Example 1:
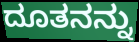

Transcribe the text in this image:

ದೂತನನ್ನು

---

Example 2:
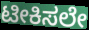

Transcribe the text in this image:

ಟೀಕಿಸಲೇ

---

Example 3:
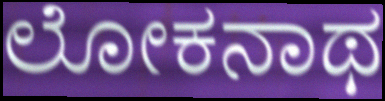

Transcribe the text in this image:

ಲೋಕನಾಥ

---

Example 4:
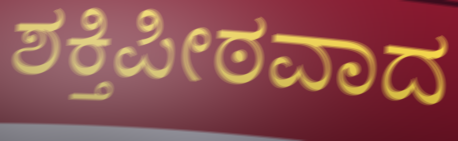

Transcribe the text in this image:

ಶಕ್ತಿಪೀಠವಾದ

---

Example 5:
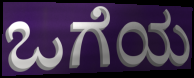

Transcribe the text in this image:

ಒಗೆಯ